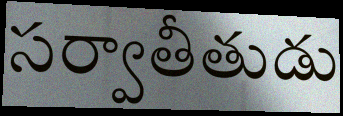
సర్వాతీతుడు